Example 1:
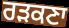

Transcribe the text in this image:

ਰੜਕਣਾ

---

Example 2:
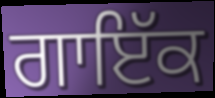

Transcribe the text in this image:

ਗਾਇੱਕ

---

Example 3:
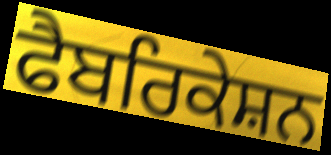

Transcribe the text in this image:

ਫੈਬਰਿਕੇਸ਼ਨ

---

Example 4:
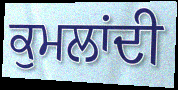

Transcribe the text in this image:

ਕੁਮਲਾਂਦੀ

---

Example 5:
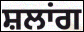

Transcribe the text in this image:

ਸ਼ਲਾਂਗ